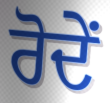
ਰੋਦੇਂ